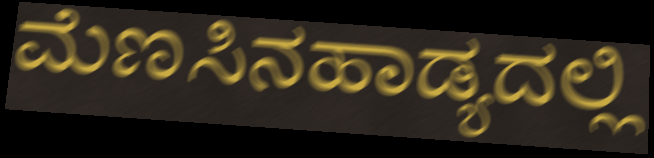
ಮೆಣಸಿನಹಾಡ್ಯದಲ್ಲಿ